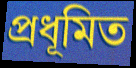
প্রধূমিত